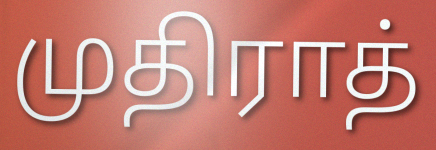
முதிராத்